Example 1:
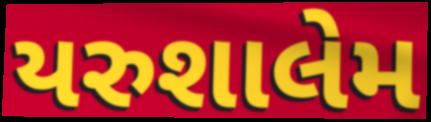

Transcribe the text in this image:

યરુશાલેમ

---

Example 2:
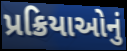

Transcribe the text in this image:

પ્રક્રિયાઓનું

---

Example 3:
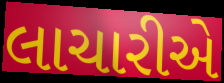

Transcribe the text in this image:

લાચારીએ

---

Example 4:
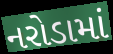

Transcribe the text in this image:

નરોડામાં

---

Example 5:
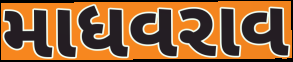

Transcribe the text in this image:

માધવરાવ